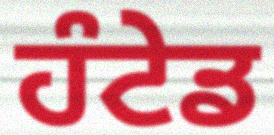
ਹੰਟੇਡ